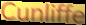
Cunliffe